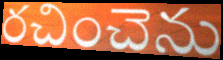
రచించెను